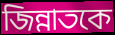
জিন্নাতকে